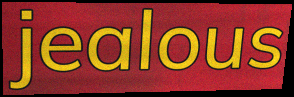
jealous